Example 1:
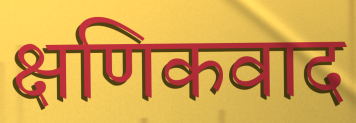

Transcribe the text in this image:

क्षणिकवाद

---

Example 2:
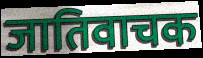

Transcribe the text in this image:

जातिवाचक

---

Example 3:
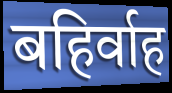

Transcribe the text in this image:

बहिर्वाह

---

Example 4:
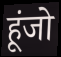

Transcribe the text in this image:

हूंजो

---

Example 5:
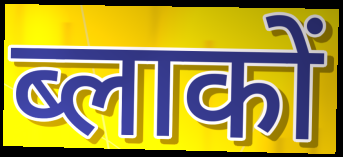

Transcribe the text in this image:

ब्लाकों